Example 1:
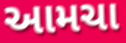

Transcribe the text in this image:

આમચા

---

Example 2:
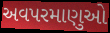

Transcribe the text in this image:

અવપરમાણુઓ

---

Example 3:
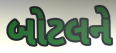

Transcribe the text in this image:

બોટલને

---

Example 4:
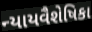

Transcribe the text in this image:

ન્યાયવૈશેષિકા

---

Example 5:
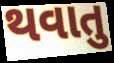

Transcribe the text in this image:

થવાતુ